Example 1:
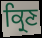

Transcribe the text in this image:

ਕ੍ਰਿਣ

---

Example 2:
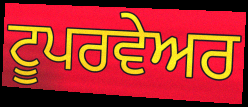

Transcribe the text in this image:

ਟੂਪਰਵੇਅਰ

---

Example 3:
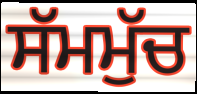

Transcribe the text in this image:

ਸੱਮਮੁੱਚ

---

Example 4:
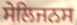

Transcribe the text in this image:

ਸੇਲਿਜਨਸ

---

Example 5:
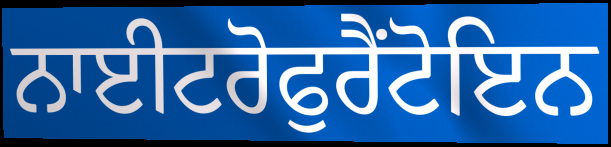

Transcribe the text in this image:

ਨਾਈਟਰੋਫੁਰੈਂਟੋਇਨ